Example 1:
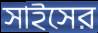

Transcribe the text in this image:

সাইসের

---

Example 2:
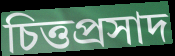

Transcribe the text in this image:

চিত্তপ্রসাদ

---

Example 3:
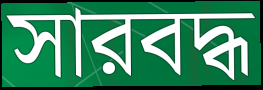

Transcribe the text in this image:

সারবদ্ধ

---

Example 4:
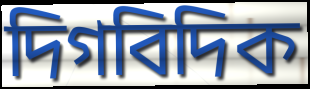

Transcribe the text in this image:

দিগবিদিক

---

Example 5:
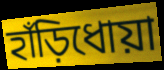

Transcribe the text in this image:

হাঁড়িধোয়া